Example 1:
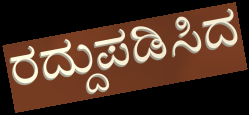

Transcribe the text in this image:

ರದ್ದುಪಡಿಸಿದ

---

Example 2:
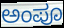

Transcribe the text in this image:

ಅಂಪೂ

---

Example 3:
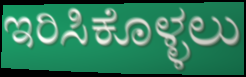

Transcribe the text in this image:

ಇರಿಸಿಕೊಳ್ಳಲು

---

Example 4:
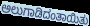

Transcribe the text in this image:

ಅಲುಗಾಡಿದಂತಾಯಿತು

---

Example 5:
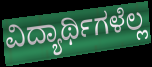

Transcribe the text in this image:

ವಿದ್ಯಾರ್ಥಿಗಳೆಲ್ಲ